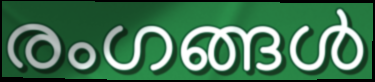
രംഗങ്ങൾ